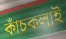
কাঁচকলাই